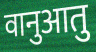
वानुआतु